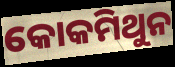
କୋକମିଥୁନ